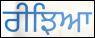
ਰੀਝਿਆ